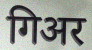
गिअर